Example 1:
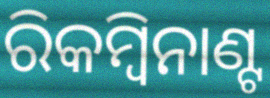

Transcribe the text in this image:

ରିକମ୍ବିନାଣ୍ଟ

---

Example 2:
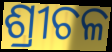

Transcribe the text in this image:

ଶ୍ରୀଚଳ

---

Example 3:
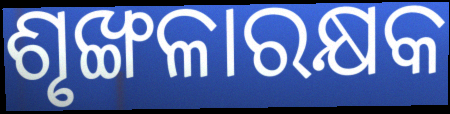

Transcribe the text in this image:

ଶୃଙ୍ଖଳାରକ୍ଷକ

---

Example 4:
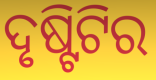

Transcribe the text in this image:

ଦୃଷ୍ଟିଟିର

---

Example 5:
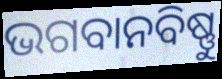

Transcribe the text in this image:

ଭଗବାନବିଷ୍ଣୁ